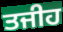
ਤਜੀਹ